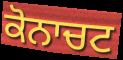
ਕੋਨਾਚਟ